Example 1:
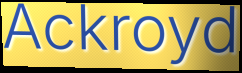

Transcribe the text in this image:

Ackroyd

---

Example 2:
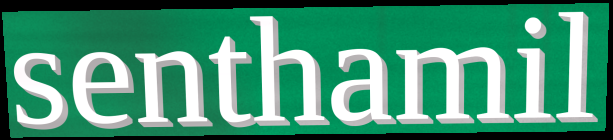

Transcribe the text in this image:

senthamil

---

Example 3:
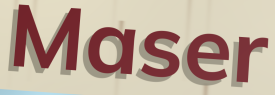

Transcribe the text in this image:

Maser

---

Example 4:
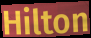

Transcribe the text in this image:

Hilton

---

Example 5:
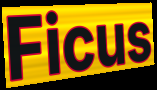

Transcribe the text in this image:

Ficus